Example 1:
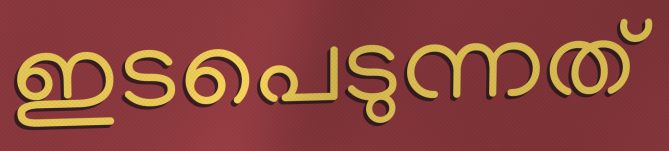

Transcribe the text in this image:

ഇടപെടുന്നത്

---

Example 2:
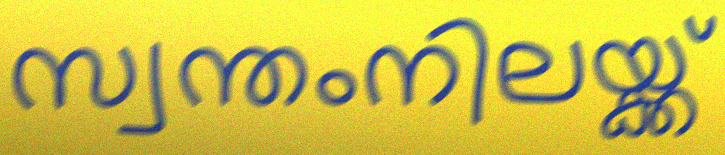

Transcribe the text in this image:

സ്വന്തംനിലയ്ക്ക്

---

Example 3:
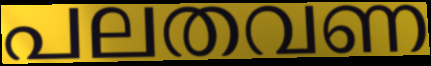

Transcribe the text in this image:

പലതവണ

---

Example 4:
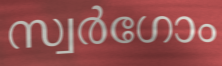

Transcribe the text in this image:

സ്വർഗോം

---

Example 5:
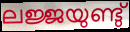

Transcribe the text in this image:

ലജ്ജയുണ്ടു്